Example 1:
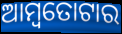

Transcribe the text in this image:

ଆମ୍ବତୋଟାର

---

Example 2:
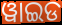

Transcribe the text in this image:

ୱାଇଡ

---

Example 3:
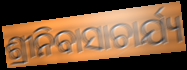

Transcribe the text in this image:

ଶ୍ରୀନିବାସାଚାର୍ଯ୍ୟ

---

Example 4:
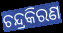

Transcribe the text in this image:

ଚନ୍ଦ୍ରକିରଣ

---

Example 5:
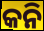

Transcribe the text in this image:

କନି